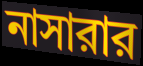
নাসারার